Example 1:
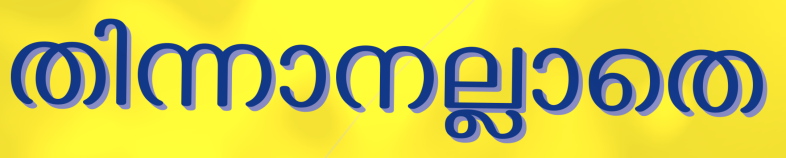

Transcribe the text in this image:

തിന്നാനല്ലാതെ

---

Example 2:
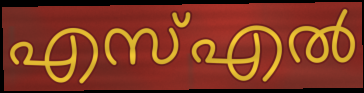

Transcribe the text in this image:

എസ്എൽ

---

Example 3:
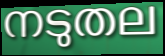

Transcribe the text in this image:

നടുതല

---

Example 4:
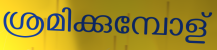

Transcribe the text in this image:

ശ്രമിക്കുമ്പോള്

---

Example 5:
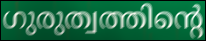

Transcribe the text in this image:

ഗുരുത്വത്തിന്റെ